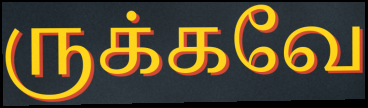
ருக்கவே